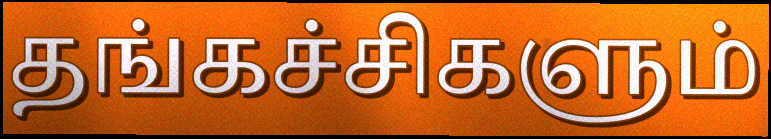
தங்கச்சிகளும்